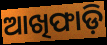
ଆଖିଫାଡ଼ି